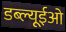
डब्ल्यूईओ